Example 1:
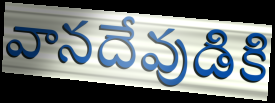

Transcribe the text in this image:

వానదేవుడికి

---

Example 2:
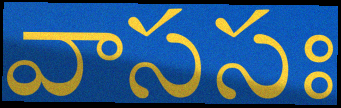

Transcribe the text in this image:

వాససః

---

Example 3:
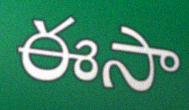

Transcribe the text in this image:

ఈసా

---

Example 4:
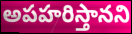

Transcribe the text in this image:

అపహరిస్తానని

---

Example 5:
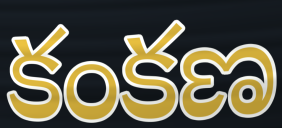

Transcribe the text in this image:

కంకణ